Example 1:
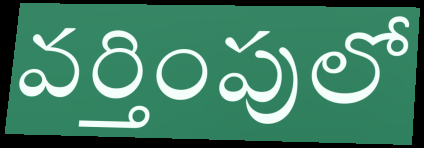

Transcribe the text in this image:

వర్తింపులో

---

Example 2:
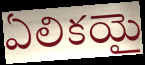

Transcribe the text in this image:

ఏలికయై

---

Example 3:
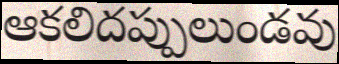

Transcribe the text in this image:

ఆకలిదప్పులుండవు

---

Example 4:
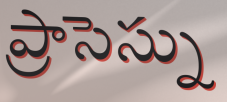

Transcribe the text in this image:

ప్రాసెస్ను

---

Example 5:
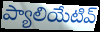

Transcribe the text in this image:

ప్యాలియేటివ్